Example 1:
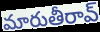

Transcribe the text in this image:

మారుతీరావ్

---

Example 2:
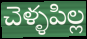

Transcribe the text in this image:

చెళ్ళపిల్ల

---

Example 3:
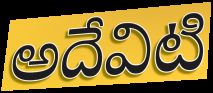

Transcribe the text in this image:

అదేవిటి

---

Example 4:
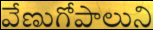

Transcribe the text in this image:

వేణుగోపాలుని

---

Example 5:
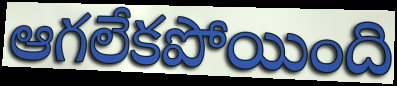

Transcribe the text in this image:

ఆగలేకపోయింది